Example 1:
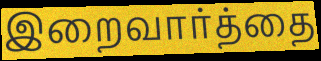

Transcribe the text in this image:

இறைவார்த்தை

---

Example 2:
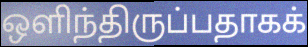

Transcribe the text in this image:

ஒளிந்திருப்பதாகக்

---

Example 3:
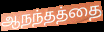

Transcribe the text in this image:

ஆநந்தத்தை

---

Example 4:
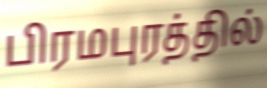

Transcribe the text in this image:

பிரமபுரத்தில்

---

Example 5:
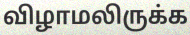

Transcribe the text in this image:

விழாமலிருக்க